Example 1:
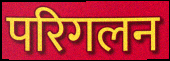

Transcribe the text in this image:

परिगलन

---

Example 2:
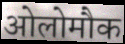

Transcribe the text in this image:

ओलोमौक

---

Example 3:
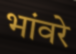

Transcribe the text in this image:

भांवरे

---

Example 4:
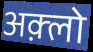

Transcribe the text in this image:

अक़्लो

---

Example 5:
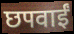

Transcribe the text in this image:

छपवाईं